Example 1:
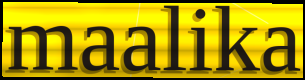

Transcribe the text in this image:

maalika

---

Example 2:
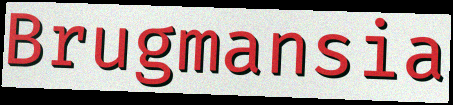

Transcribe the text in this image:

Brugmansia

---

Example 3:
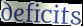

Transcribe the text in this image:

deficits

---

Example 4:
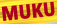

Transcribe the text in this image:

MUKU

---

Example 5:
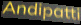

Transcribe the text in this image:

Andipatti